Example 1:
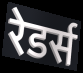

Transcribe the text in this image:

रेडर्स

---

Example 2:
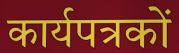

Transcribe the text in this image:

कार्यपत्रकों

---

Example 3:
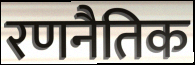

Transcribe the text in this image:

रणनैतिक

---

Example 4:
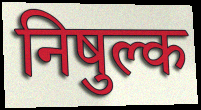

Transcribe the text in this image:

निषुल्क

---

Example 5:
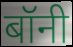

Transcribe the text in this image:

बॉनी